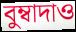
বুম্বাদাও